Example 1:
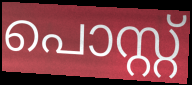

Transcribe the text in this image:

പൊസ്റ്റ്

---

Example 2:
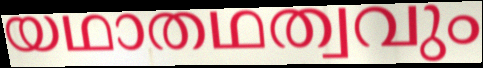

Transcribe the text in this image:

യഥാതഥത്വവും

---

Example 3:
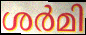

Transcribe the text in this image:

ശർമി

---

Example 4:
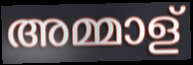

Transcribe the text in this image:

അമ്മാള്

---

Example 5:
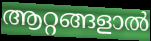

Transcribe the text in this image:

ആറ്റങ്ങളാൽ